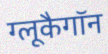
ग्लूकैगॉन